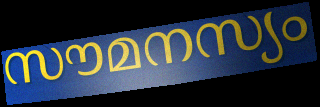
സൗമനസ്യം